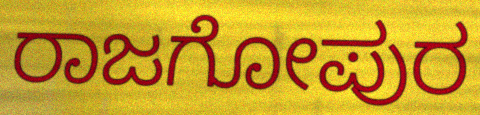
ರಾಜಗೋಪುರ